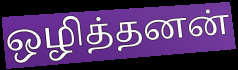
ஒழித்தனன்